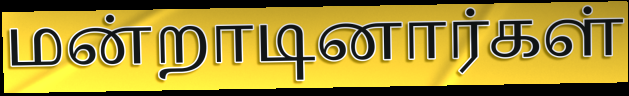
மன்றாடினார்கள்